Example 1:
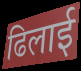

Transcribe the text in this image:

ढिलाई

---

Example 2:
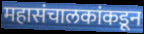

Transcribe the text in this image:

महासंचालकांकडून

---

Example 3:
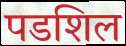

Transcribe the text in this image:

पडशिल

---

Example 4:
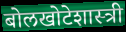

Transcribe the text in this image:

बोलखोटेशास्त्री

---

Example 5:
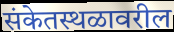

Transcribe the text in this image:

संकेतस्थळावरील